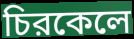
চিরকেলে